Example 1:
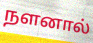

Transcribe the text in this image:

நளனால்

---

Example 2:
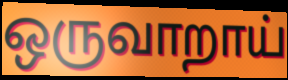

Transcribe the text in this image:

ஒருவாறாய்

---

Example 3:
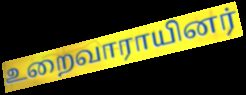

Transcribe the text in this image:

உறைவாராயினர்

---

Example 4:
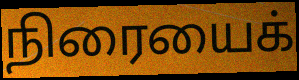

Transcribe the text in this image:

நிரையைக்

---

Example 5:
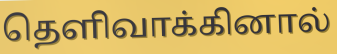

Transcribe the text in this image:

தெளிவாக்கினால்